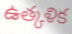
ఉత్కళిక